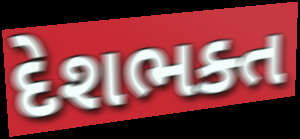
દેશભક્ત